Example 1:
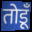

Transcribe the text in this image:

तोडूँ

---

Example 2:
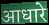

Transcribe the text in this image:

आधारे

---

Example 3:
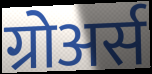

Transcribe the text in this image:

ग्रोअर्स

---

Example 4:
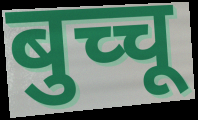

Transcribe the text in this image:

बुच्चू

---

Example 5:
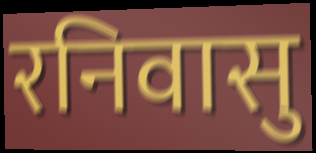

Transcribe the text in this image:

रनिवासु